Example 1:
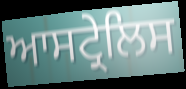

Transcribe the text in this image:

ਆਸਟ੍ਰੇਲਿਸ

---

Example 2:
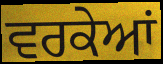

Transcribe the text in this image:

ਵਰਕੇਆਂ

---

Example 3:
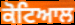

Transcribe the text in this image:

ਕੋਟਿਆਲ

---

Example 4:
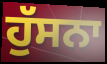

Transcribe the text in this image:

ਹੁੱਸਨਾ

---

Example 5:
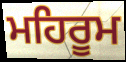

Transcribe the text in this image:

ਮਹਿਰੂਮ